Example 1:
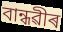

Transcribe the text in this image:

বান্ধৱীৰ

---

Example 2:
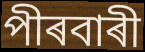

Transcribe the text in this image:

পীৰবাৰী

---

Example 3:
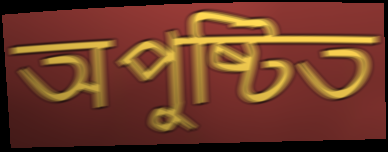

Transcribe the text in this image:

অপুষ্টিত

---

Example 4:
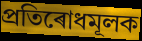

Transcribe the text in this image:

প্ৰতিৰোধমূলক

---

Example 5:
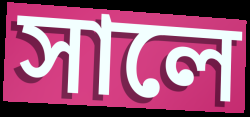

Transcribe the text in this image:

সালে